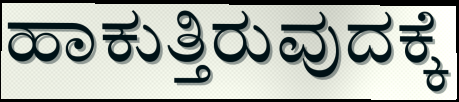
ಹಾಕುತ್ತಿರುವುದಕ್ಕೆ